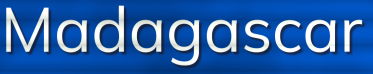
Madagascar